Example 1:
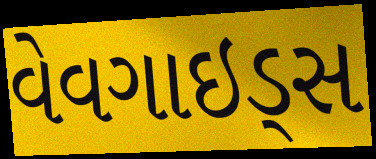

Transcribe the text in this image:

વેવગાઇડ્સ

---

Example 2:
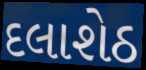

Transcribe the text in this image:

દલાશેઠ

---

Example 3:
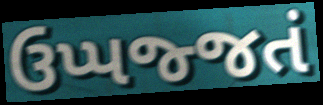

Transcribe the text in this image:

ઉપ્પજ્જતં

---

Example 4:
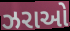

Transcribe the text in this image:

ઝરાઓ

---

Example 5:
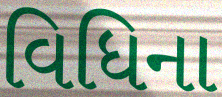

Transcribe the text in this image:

વિધિના